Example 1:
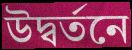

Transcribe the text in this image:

উদ্বর্তনে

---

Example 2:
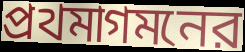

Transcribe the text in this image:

প্রথমাগমনের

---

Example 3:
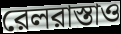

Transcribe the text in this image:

রেলরাস্তাও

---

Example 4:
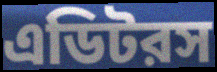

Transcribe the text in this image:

এডিটরস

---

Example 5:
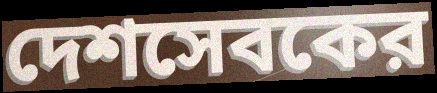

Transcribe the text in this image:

দেশসেবকের